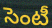
సెంటీ